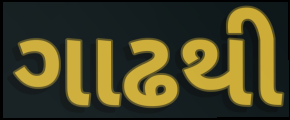
ગાઢથી